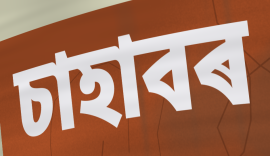
চাহাবৰ